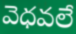
వెధవలే